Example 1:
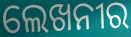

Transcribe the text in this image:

ଲେଖନୀର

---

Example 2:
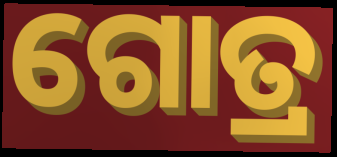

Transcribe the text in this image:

ଗୋତ୍ର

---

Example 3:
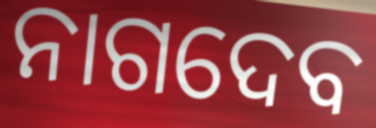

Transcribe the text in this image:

ନାଗଦେବ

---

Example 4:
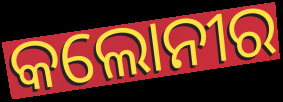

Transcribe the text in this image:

କଲୋନୀର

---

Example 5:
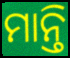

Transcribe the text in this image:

ମାନ୍ତି